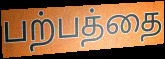
பற்பத்தை